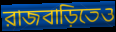
রাজবাড়িতেও